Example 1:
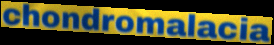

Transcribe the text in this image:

chondromalacia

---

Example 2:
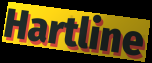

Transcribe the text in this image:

Hartline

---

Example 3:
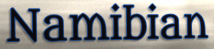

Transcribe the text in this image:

Namibian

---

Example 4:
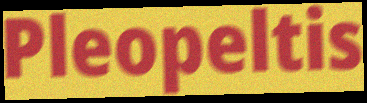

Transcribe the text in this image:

Pleopeltis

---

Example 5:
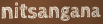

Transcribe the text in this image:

nitsangana